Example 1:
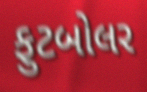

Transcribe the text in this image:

ફુટબોલર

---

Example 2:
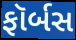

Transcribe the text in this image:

ફૉર્બસ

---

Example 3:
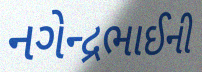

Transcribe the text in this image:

નગેન્દ્રભાઈની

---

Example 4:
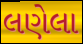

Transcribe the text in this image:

લણેલા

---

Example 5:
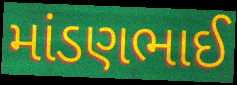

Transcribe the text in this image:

માંડણભાઈ